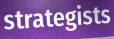
strategists